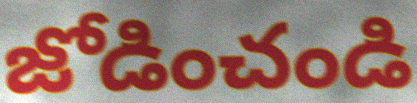
జోడించండి